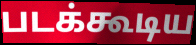
படக்கூடிய